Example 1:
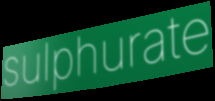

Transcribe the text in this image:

sulphurate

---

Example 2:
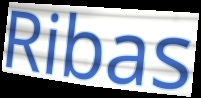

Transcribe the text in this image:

Ribas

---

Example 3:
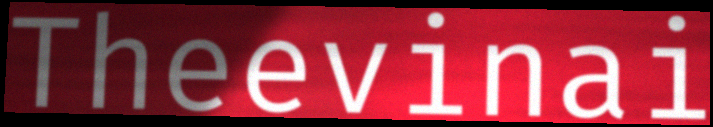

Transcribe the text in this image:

Theevinai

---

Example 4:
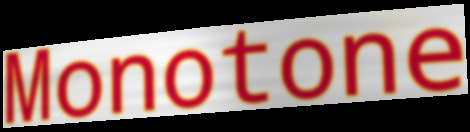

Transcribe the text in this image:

Monotone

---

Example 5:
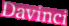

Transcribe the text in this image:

Davinci